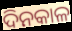
ଦିନକାଳ